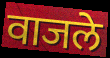
वाजले